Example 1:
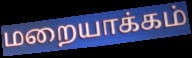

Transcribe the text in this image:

மறையாக்கம்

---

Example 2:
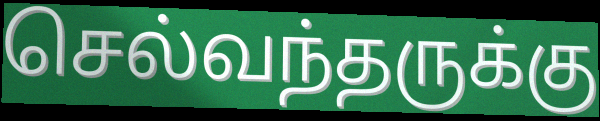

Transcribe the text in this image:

செல்வந்தருக்கு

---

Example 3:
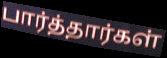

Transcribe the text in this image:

பார்த்தார்கள்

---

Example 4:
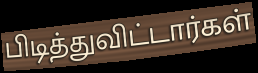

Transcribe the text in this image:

பிடித்துவிட்டார்கள்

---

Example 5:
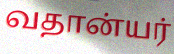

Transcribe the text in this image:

வதான்யர்